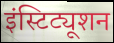
इंस्टिट्यूशन